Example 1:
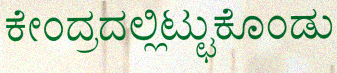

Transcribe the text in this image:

ಕೇಂದ್ರದಲ್ಲಿಟ್ಟುಕೊಂಡು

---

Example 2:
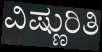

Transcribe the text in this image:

ವಿಷ್ಣುರಿತಿ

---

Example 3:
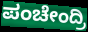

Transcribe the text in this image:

ಪಂಚೇಂದ್ರಿ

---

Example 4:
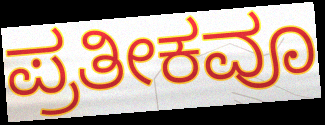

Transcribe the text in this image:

ಪ್ರತೀಕವೂ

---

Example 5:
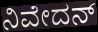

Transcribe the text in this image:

ನಿವೇದನ್